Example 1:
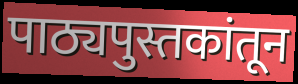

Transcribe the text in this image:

पाठ्यपुस्तकांतून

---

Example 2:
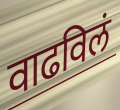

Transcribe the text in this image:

वाढविलं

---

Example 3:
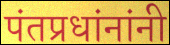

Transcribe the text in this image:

पंतप्रधांनांनी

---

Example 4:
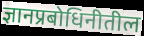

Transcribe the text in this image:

ज्ञानप्रबोधिनीतील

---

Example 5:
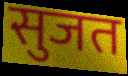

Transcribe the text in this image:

सुजत